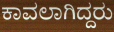
ಕಾವಲಾಗಿದ್ದರು